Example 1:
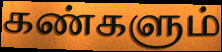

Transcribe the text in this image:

கண்களும்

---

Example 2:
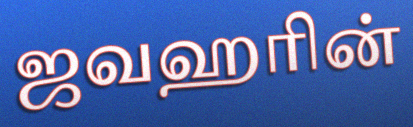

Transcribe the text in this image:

ஜவஹரின்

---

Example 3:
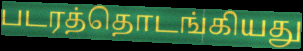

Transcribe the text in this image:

படரத்தொடங்கியது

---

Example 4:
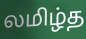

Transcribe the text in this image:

லமிழ்த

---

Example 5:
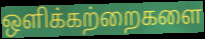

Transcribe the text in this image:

ஒளிக்கற்றைகளை